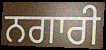
ਨਗਾਰੀ